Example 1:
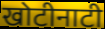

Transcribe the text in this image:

खोटीनाटी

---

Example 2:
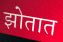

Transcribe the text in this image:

झोतात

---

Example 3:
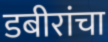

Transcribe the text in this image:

डबीरांचा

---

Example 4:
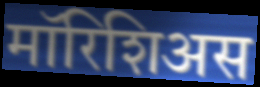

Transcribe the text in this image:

मॉरिशिअस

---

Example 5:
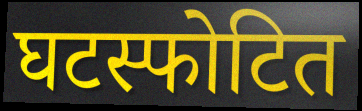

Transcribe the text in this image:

घटस्फोटित